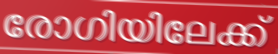
രോഗിയിലേക്ക്